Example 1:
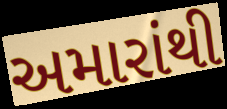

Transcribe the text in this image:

અમારાંથી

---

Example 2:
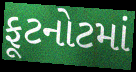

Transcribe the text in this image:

ફૂટનોટમાં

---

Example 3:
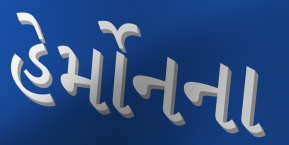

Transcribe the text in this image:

હેર્મોનના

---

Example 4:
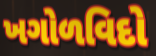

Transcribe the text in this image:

ખગોળવિદો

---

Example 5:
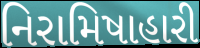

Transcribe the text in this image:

નિરામિષાહારી